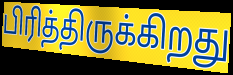
பிரித்திருக்கிறது